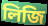
লিজি